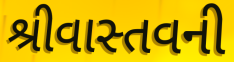
શ્રીવાસ્તવની